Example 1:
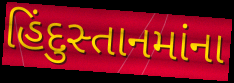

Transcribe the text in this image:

હિંદુસ્તાનમાંના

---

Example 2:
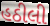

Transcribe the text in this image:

હઠીલી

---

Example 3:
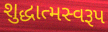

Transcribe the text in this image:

શુદ્ધાત્મસ્વરૂપ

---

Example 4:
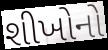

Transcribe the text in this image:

શીખોનો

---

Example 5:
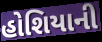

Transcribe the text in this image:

હોશિયાની